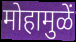
मोहामुळें